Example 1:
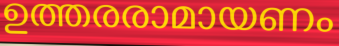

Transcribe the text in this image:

ഉത്തരരാമായണം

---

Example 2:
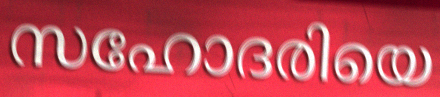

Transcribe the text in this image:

സഹോദരിയെ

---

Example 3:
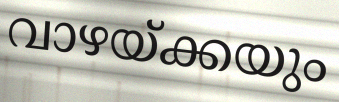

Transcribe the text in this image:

വാഴയ്ക്കയും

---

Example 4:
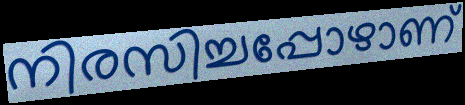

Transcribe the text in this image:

നിരസിച്ചപ്പോഴാണ്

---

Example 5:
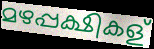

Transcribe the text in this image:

മഴപ്പക്ഷികള്